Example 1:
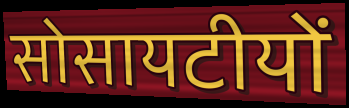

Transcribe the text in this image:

सोसायटीयों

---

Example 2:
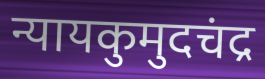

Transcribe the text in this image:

न्यायकुमुदचंद्र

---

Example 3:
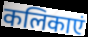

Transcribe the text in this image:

कलिकाएं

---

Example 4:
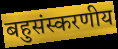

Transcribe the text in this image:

बहुसंस्करणीय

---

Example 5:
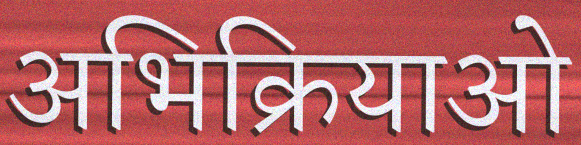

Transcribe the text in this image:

अभिक्रियाओ